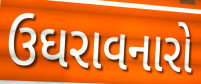
ઉઘરાવનારો